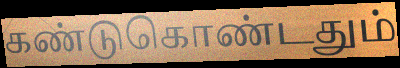
கண்டுகொண்டதும்